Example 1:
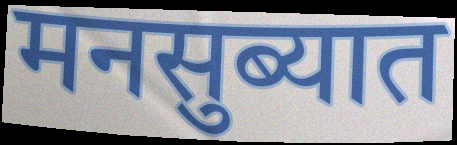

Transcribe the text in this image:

मनसुब्यात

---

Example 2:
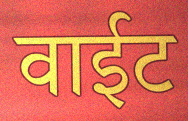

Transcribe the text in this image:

वाईट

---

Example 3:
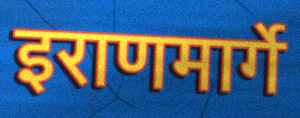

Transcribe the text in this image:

इराणमार्गे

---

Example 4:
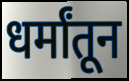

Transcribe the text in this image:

धर्मांतून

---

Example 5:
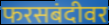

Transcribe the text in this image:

फरसबंदीवर